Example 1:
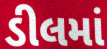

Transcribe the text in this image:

ડીલમાં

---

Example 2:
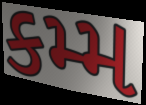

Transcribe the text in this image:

કમ્મ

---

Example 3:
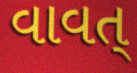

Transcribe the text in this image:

વાવત્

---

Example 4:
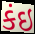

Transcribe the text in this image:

કંઇ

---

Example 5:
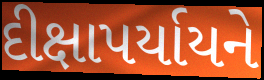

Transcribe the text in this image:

દીક્ષાપર્યાયને